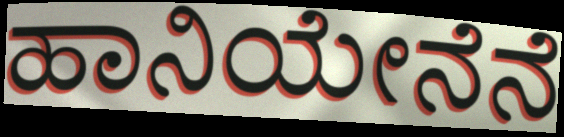
ಹಾನಿಯೇನೆನೆ